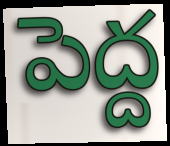
పెద్ద